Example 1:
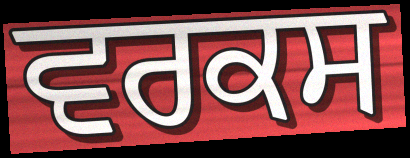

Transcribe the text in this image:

ਵਰਕਸ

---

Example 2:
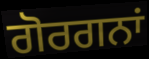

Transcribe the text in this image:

ਗੋਰਗਨਾਂ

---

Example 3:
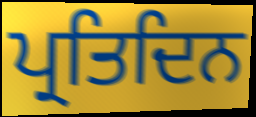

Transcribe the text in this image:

ਪ੍ਰਤਿਦਿਨ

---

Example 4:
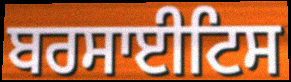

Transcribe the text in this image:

ਬਰਸਾਈਟਿਸ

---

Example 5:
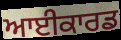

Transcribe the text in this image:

ਆਈਕਾਰਡ